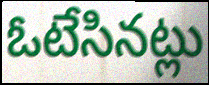
ఓటేసినట్లు